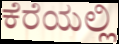
ಕೆರೆಯಲ್ಲಿ